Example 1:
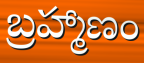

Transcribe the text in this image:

బ్రహ్మాణం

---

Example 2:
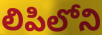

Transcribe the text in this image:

లిపిలోని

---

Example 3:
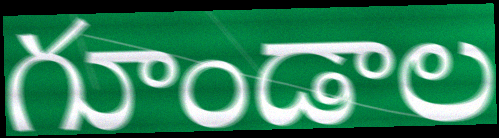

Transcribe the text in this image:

గూండాల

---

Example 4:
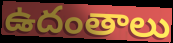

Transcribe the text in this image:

ఉదంతాలు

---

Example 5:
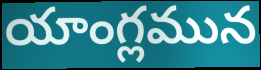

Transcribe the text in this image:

యాంగ్లమున